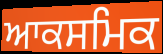
ਆਕਸਮਿਕ